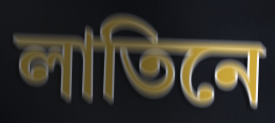
লাতিনে